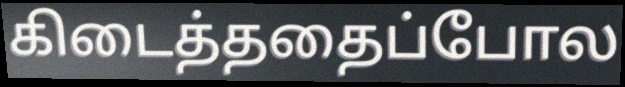
கிடைத்ததைப்போல